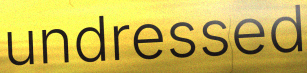
undressed